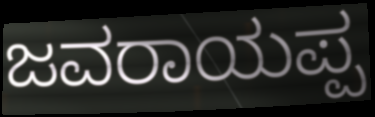
ಜವರಾಯಪ್ಪ